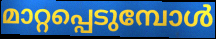
മാറ്റപ്പെടുമ്പോൾ